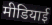
मीडियाई